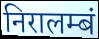
निरालम्बं